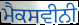
ਮੈਕਸਵੀਨੀ